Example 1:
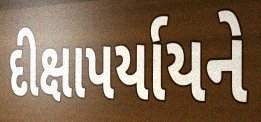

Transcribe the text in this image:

દીક્ષાપર્યાયને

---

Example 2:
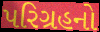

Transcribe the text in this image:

પરિગ્રહનો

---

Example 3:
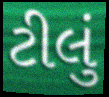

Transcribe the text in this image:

ટીલું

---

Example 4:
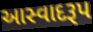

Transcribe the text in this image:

આસ્વાદરૂપ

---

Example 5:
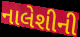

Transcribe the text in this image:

નાલેશીની